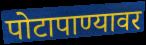
पोटापाण्यावर